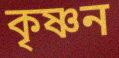
কৃষ্ণন